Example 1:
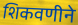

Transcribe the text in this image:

शिकवणीने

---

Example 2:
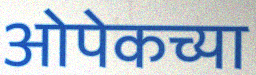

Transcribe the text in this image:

ओपेकच्या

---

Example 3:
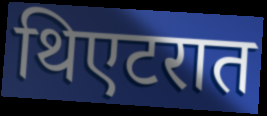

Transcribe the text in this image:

थिएटरात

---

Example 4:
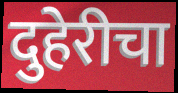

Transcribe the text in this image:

दुहेरीचा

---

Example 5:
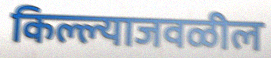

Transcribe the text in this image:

किल्ल्याजवळील